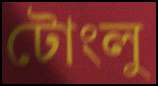
টোংলু